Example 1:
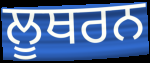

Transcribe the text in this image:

ਲੂਥਰਨ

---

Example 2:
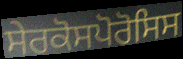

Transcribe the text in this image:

ਸੇਰਕੋਸਪੋਰੋਸਿਸ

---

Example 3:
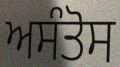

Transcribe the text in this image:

ਅਸੰਤੋਸ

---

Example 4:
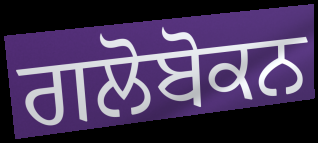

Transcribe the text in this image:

ਗਲੋਬੋਕਨ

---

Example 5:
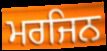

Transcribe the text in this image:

ਮਰਜਿਨ